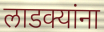
लाडक्यांना